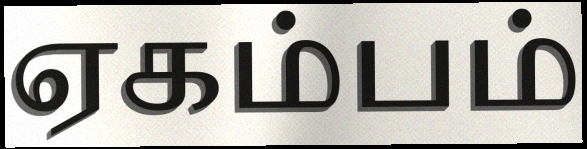
ஏகம்பம்